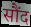
सौंद